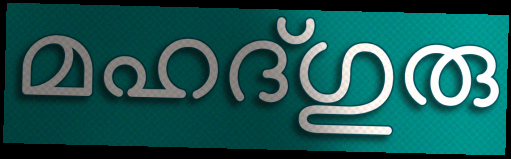
മഹദ്ഗുരു